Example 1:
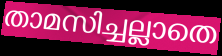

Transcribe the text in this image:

താമസിച്ചല്ലാതെ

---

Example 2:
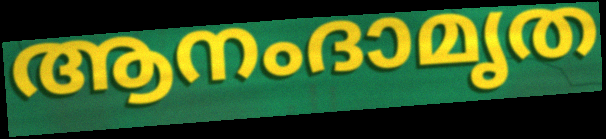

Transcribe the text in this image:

ആനംദാമൃത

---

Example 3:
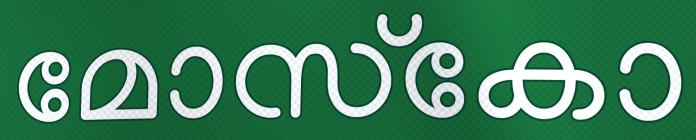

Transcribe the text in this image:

മോസ്‌കോ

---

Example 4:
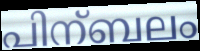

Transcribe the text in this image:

പിന്ബലം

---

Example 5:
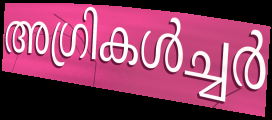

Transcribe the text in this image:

അഗ്രികൾച്ചർ